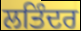
ਲਤਿੰਦਰ